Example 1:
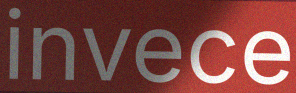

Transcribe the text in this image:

invece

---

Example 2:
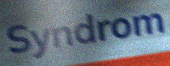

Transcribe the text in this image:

Syndrom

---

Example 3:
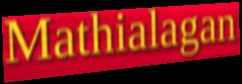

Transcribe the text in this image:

Mathialagan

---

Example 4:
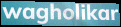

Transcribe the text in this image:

wagholikar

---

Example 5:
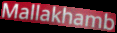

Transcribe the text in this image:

Mallakhamb